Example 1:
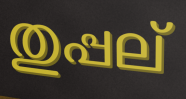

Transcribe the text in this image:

തുപ്പല്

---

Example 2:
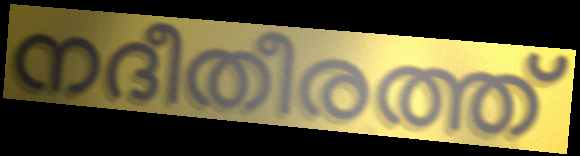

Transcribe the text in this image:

നദീതീരത്ത്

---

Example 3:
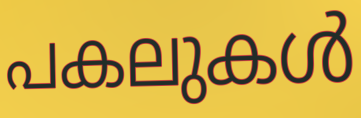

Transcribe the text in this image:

പകലുകൾ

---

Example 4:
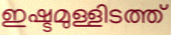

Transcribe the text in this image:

ഇഷ്ടമുള്ളിടത്ത്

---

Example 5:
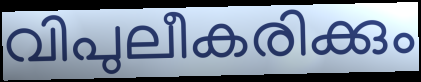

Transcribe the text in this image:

വിപുലീകരിക്കും